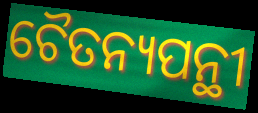
ଚୈତନ୍ୟପନ୍ଥୀ